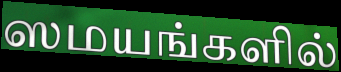
ஸமயங்களில்